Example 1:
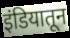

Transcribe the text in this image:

इंडियातून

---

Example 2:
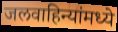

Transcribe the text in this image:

जलवाहिन्यांमध्ये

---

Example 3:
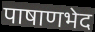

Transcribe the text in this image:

पाषाणभेद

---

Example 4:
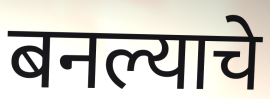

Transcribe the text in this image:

बनल्याचे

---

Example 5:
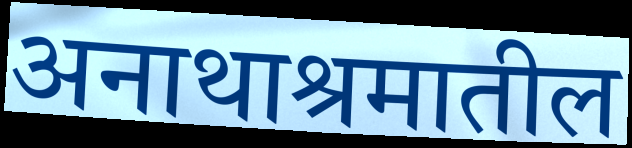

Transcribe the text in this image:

अनाथाश्रमातील